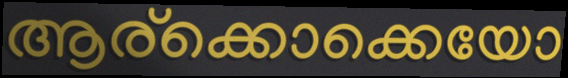
ആര്ക്കൊക്കെയോ